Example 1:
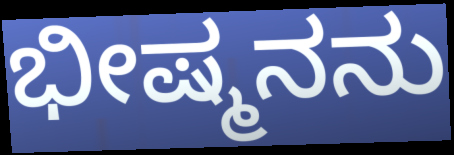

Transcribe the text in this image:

ಭೀಷ್ಮನನು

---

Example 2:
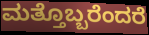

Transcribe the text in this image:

ಮತ್ತೊಬ್ಬರೆಂದರೆ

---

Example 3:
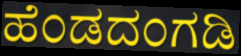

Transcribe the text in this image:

ಹೆಂಡದಂಗಡಿ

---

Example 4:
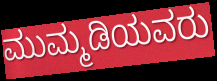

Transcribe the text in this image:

ಮುಮ್ಮಡಿಯವರು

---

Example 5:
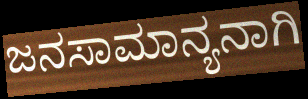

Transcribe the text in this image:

ಜನಸಾಮಾನ್ಯನಾಗಿ